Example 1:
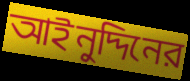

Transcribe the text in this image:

আইনুদ্দিনের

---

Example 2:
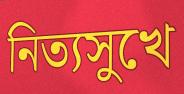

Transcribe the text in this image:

নিত্যসুখে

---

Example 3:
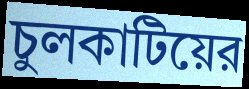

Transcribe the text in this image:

চুলকাটিয়ের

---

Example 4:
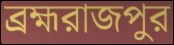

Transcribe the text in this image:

ব্রহ্মরাজপুর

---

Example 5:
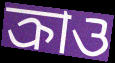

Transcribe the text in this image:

ক্রাও